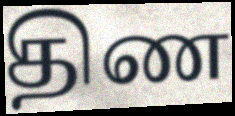
திண